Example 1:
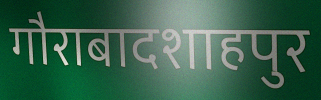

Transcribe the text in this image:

गौराबादशाहपुर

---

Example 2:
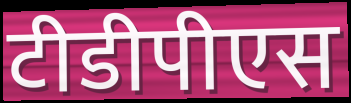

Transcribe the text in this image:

टीडीपीएस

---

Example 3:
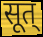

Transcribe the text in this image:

सूत्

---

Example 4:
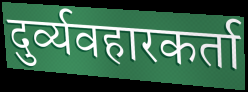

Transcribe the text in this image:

दुर्व्यवहारकर्ता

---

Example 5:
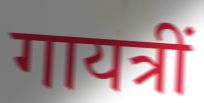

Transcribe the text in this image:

गायत्रीं